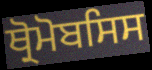
ਥ੍ਰੋਮੋਬਸਿਸ